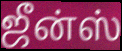
ஜீன்ஸ்